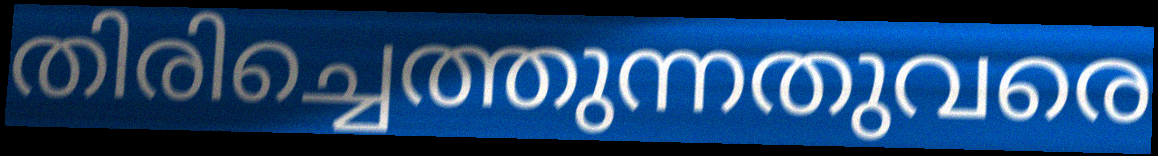
തിരിച്ചെത്തുന്നതുവരെ